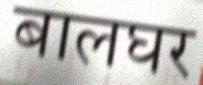
बालघर